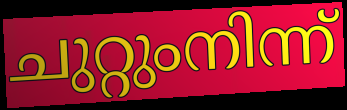
ചുറ്റുംനിന്ന്